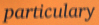
particulary